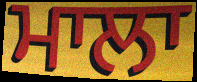
ਮਾਲਾ